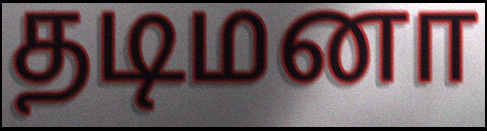
தடிமனா